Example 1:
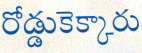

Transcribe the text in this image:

రోడ్డుకెక్కారు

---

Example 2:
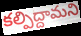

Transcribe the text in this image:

కల్పిద్దామని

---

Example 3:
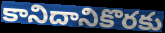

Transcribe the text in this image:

కానిదానికొరకు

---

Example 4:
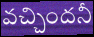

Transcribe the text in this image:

వచ్చిందనీ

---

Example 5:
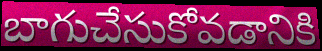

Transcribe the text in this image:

బాగుచేసుకోవడానికి